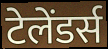
टेलेंडर्स